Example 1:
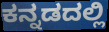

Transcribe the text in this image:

ಕನ್ನಡದಲ್ಲಿ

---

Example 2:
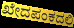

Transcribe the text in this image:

ಖೇದಪಂಕದಲಿ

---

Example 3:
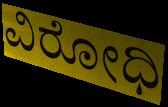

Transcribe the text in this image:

ವಿರೋಧಿ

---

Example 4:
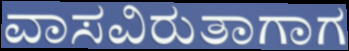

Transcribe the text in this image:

ವಾಸವಿರುತಾಗಾಗ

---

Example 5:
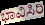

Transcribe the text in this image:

ಭಾವಿಸಿರಿ